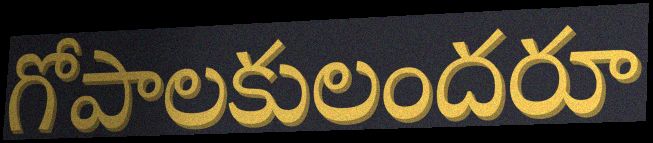
గోపాలకులందరూ